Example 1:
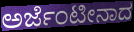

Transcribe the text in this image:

ಅರ್ಜೆಂಟೀನಾದ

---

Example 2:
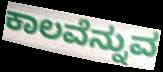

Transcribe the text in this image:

ಕಾಲವೆನ್ನುವ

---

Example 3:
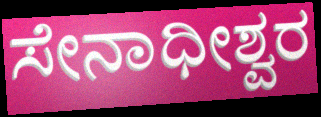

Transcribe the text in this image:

ಸೇನಾಧೀಶ್ವರ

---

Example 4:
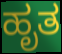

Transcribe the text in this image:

ಹೃತ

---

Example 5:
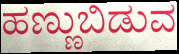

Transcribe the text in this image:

ಹಣ್ಣುಬಿಡುವ